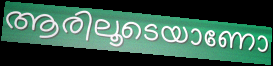
ആരിലൂടെയാണോ